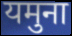
यमुना